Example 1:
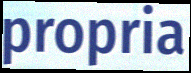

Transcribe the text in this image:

propria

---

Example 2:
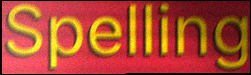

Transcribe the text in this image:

Spelling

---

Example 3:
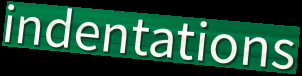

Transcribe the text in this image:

indentations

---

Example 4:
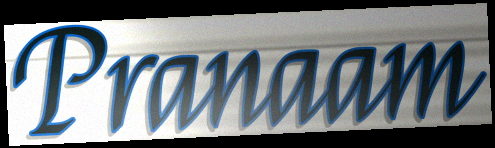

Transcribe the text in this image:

Pranaam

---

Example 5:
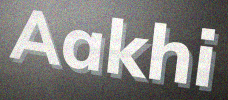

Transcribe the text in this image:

Aakhi